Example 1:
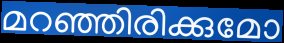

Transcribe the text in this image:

മറഞ്ഞിരിക്കുമോ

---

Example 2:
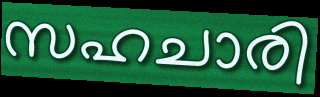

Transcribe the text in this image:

സഹചാരി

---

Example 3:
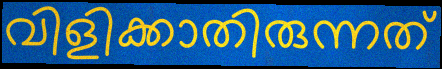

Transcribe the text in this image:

വിളിക്കാതിരുന്നത്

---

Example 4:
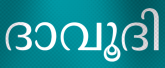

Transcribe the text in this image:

ദാവൂദി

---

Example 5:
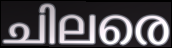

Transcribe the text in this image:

ചിലരെ